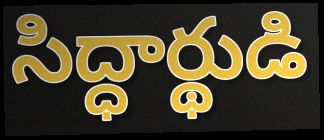
సిద్ధార్థుడి